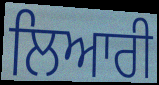
ਲਿਆਰੀ